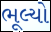
ભૂલ્‍યો